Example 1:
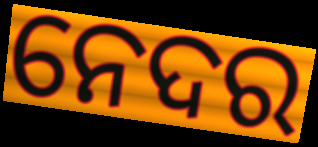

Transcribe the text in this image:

ନେଦର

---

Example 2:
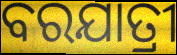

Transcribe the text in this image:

ବରଯାତ୍ରୀ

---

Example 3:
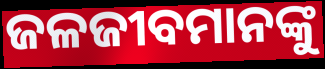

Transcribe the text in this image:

ଜଳଜୀବମାନଙ୍କୁ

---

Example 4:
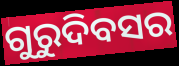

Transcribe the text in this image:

ଗୁରୁଦିବସର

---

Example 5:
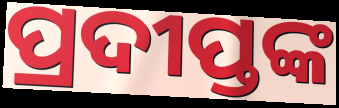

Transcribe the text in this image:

ପ୍ରଦୀପ୍ତଙ୍କ